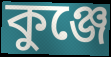
কুঞ্জে